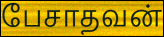
பேசாதவன்